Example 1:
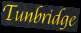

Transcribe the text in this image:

Tunbridge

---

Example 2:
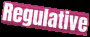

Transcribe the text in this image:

Regulative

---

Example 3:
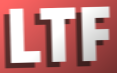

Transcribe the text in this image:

LTF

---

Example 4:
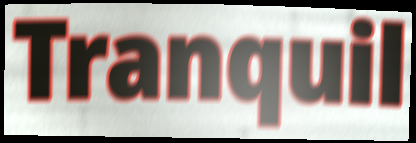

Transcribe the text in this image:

Tranquil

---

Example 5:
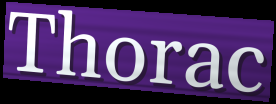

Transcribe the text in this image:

Thorac